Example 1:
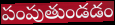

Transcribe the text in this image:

పంపుతుండడం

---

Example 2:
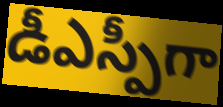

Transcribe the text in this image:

డీఎస్పీగా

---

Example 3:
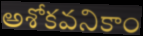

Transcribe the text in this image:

అశోకవనికాం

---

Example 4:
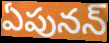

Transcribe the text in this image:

ఏపునన్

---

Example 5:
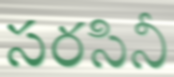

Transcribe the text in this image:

సరసినీ